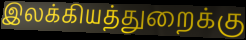
இலக்கியத்துறைக்கு